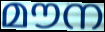
മൗന